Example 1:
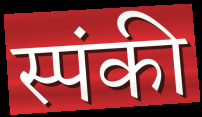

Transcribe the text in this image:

स्पंकी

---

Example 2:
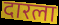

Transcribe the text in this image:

दारला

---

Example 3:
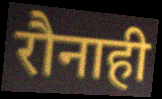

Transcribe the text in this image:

रौनाही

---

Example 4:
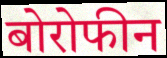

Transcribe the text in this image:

बोरोफीन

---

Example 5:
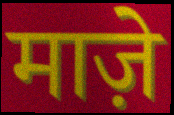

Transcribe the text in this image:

माज़े